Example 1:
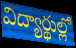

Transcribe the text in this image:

విద్యార్థుల్లో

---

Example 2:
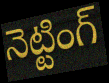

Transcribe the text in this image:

నెట్టింగ్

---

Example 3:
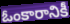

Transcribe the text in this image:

ఓంకారానికీ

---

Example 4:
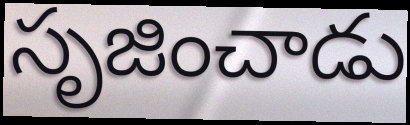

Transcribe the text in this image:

సృజించాడు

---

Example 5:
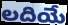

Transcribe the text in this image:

లదియే